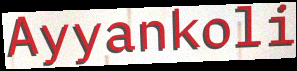
Ayyankoli